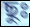
ছুঃ